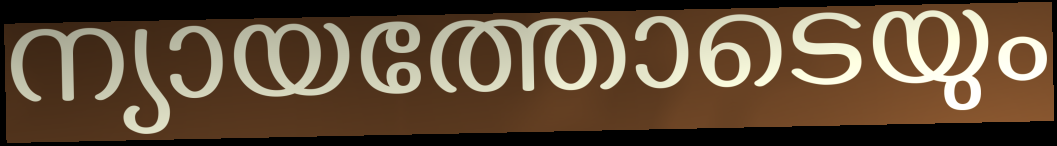
ന്യായത്തോടെയും